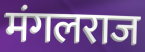
मंगलराज